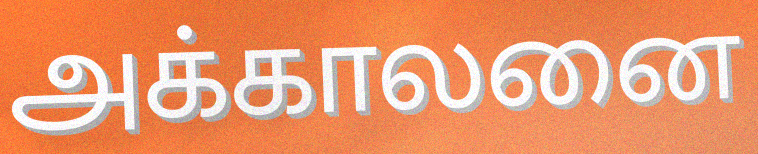
அக்காலனை